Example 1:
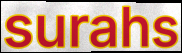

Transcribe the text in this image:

surahs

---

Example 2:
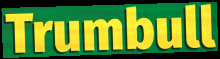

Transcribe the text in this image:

Trumbull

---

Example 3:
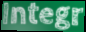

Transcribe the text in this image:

Integr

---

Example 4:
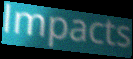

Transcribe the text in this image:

Impacts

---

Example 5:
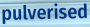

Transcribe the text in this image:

pulverised